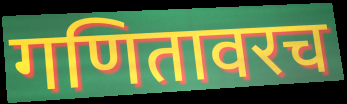
गणितावरच